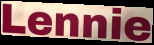
Lennie